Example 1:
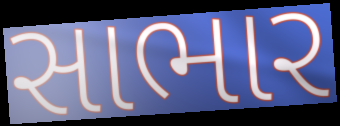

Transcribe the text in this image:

સાભાર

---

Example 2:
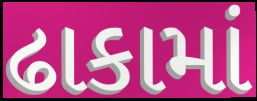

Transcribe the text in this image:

ઢાકામાં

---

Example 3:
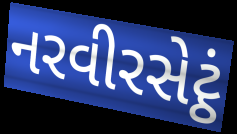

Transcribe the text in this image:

નરવીરસેટ્ઠં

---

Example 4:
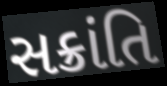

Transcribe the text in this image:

સક્રાંતિ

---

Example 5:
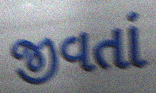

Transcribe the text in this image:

જીવતાં